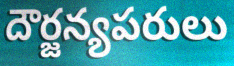
దౌర్జన్యపరులు